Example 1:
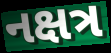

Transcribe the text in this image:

નક્ષત્ર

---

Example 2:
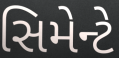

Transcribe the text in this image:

સિમેન્ટે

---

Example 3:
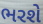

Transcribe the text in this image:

ભરશે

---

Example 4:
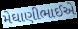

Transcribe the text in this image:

મેઘાણીભાઈએ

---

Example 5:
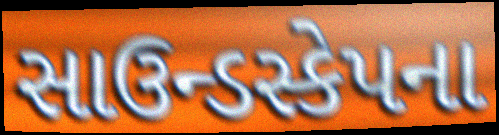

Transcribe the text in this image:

સાઉન્ડસ્કેપના